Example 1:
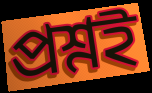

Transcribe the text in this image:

প্ৰশ্নই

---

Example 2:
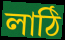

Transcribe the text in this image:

লাঠি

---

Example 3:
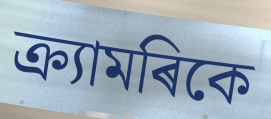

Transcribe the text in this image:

ক্ৰ্যামৰিকে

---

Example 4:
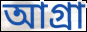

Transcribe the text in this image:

আগ্ৰা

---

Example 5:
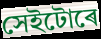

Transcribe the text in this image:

সেইটোৰে